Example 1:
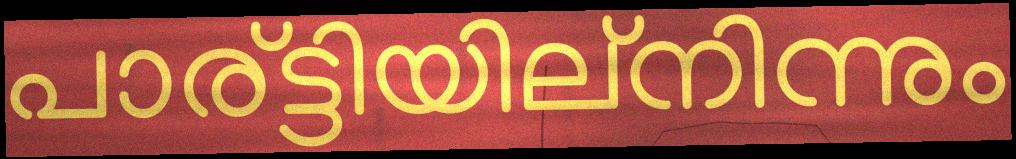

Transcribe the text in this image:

പാര്ട്ടിയില്നിന്നും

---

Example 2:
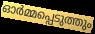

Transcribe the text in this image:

ഓർമ്മപ്പെടുത്തും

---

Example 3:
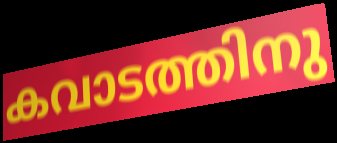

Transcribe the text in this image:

കവാടത്തിനു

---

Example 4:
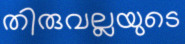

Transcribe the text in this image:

തിരുവല്ലയുടെ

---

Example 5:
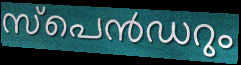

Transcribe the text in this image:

സ്പെൻഡറും